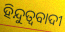
ହିନ୍ଦୁତ୍ୱବାଦୀ